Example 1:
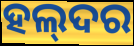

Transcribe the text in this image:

ହଲ୍‌ଦର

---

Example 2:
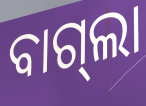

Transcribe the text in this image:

ବାଗ୍‌ଲା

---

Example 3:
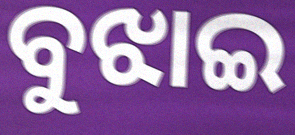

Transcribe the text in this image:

ବୁଝାଇ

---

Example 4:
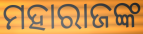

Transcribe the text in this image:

ମହାରାଜଙ୍କ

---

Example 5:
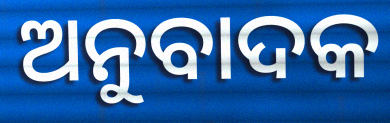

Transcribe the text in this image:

ଅନୁବାଦକ